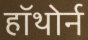
हॉथोर्न